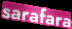
sarafara